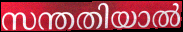
സന്തതിയാൽ